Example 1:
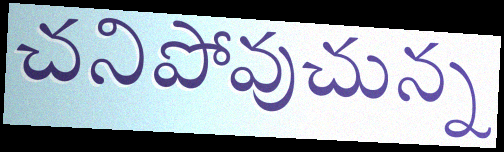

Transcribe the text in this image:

చనిపోవుచున్న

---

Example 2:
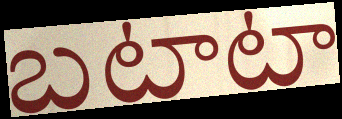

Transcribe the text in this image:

బటాటా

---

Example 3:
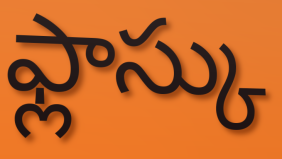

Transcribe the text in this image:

ఫ్లాస్కు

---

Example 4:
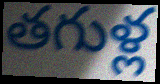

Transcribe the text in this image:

తగుళ్ల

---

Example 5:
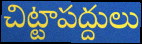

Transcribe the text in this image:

చిట్టాపద్దులు